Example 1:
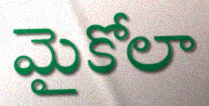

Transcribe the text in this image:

మైకోలా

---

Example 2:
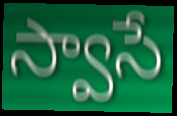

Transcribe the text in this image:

స్వాసే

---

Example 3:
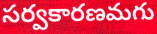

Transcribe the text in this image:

సర్వకారణమగు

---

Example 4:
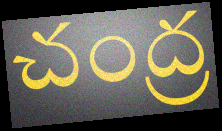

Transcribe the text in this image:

చంద్ర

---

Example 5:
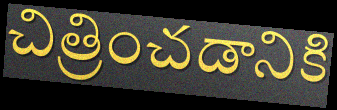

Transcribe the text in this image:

చిత్రించడానికి